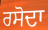
ਰਸੋਦਾ